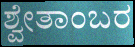
ಶ್ವೇತಾಂಬರ